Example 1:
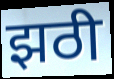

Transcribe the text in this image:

झठी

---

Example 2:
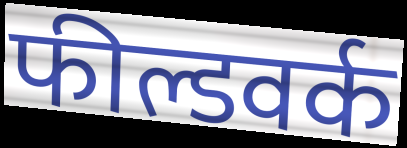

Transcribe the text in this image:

फील्डवर्क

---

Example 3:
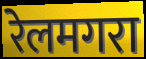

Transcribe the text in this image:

रेलमगरा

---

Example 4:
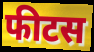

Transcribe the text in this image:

फीटस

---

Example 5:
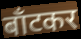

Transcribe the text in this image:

बाँटकर